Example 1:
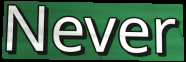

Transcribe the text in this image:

Never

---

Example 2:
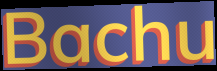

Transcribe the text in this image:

Bachu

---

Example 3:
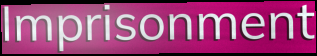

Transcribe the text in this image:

Imprisonment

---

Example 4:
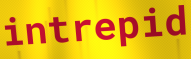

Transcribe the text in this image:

intrepid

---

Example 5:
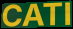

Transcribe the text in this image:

CATI